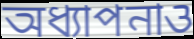
অধ্যাপনাও